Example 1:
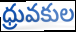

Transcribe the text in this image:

ధ్రువకుల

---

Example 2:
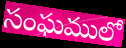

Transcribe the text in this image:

సంఘములో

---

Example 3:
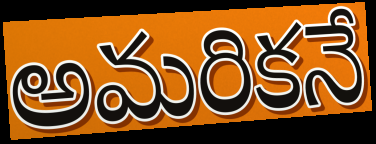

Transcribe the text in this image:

అమరికనే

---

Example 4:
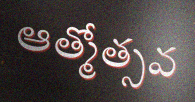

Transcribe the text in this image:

ఆత్మోత్సవ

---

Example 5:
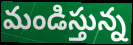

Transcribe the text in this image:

మండిస్తున్న